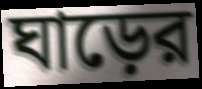
ঘাড়ের